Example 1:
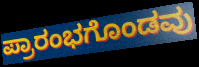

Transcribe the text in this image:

ಪ್ರಾರಂಭಗೊಂಡವು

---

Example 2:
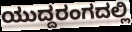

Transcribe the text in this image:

ಯುದ್ದರಂಗದಲ್ಲಿ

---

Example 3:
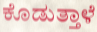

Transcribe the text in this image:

ಕೊಡುತ್ತಾಳೆ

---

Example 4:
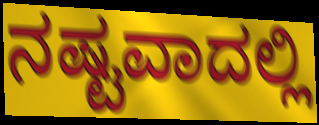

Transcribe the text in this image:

ನಷ್ಟವಾದಲ್ಲಿ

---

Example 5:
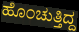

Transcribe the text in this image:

ಹೊಂಚುತ್ತಿದ್ದ